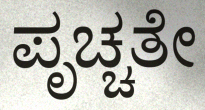
ಪೃಚ್ಚತೇ